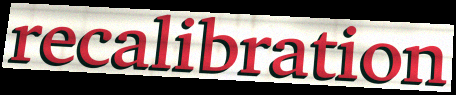
recalibration